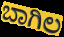
ಬಾಗಿಲ